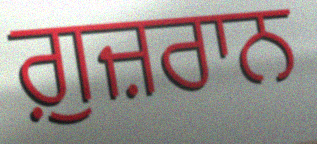
ਗ਼ੁਜ਼ਰਾਨ